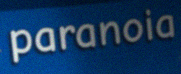
paranoia